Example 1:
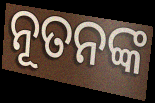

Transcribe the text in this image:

ନୂତନଙ୍କ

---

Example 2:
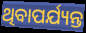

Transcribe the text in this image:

ଥିବାପର୍ଯ୍ୟନ୍ତ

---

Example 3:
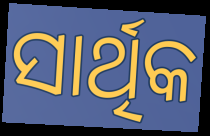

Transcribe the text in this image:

ସାର୍ଥିକ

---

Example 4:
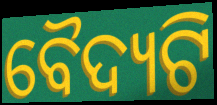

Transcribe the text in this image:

ବୈଦ୍ୟଟି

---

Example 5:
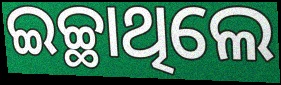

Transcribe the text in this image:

ଇଚ୍ଛାଥିଲେ